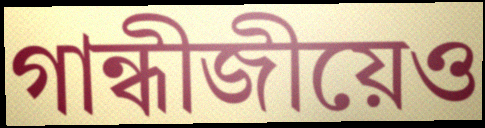
গান্ধীজীয়েও